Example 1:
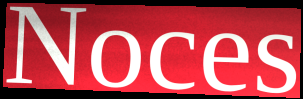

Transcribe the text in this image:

Noces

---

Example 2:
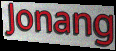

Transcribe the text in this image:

Jonang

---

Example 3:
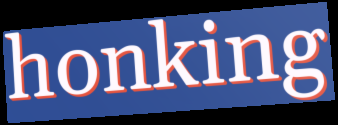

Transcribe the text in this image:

honking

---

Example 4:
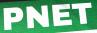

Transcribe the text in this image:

PNET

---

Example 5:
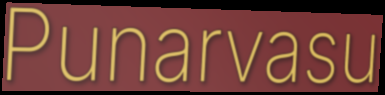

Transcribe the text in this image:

Punarvasu